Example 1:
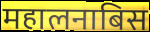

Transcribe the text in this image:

महालनाबिस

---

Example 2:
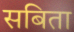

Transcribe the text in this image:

सबिता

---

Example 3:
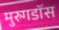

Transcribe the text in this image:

मुरुगडॉस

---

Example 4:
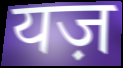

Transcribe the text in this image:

यज़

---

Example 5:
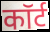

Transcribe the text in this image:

कॉर्ट